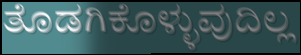
ತೊಡಗಿಕೊಳ್ಳುವುದಿಲ್ಲ